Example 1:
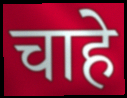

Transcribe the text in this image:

चाहे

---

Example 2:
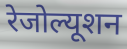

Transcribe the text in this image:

रेजोल्यूशन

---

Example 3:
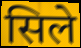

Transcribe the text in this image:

सिले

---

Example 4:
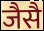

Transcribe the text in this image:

जैसै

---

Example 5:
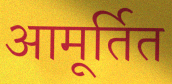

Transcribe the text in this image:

आमूर्तित